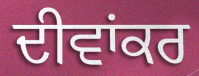
ਦੀਵਾਂਕਰ